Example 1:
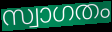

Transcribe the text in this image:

സ്വാഗതം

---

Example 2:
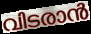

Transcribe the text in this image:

വിടരാൻ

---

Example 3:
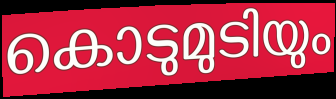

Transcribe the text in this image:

കൊടുമുടിയും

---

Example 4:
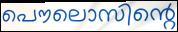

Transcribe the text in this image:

പൌലൊസിന്റെ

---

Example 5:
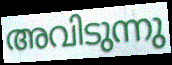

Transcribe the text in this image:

അവിടുന്നു